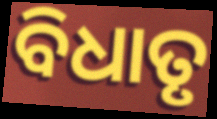
ବିଧାତୃ